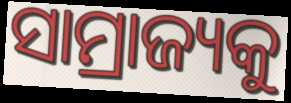
ସାମ୍ରାଜ୍ୟକୁ